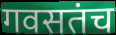
गवसतंच